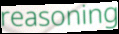
reasoning